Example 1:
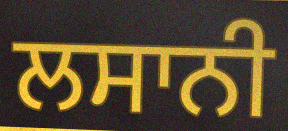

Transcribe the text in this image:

ਲਸਾਨੀ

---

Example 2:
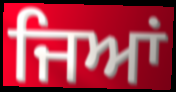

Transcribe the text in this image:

ਜਿਆਂ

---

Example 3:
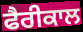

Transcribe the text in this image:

ਫੈਰੀਕਾਲ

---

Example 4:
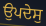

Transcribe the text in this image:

ਉਪਦੇਸੁ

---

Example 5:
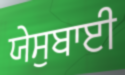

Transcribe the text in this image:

ਯੇਸੁਬਾਈ